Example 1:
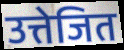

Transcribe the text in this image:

उत्तेजित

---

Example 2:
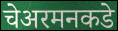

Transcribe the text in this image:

चेअरमनकडे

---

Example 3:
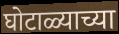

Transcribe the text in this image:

घोटाळ्याच्या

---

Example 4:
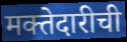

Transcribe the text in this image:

मक्तेदारीची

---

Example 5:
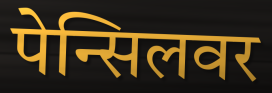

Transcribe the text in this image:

पेन्सिलवर